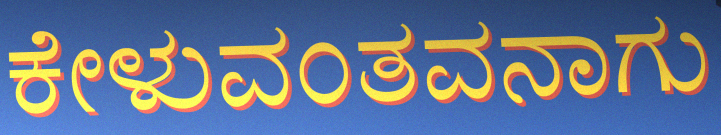
ಕೇಳುವಂತವನಾಗು